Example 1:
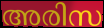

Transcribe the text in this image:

അരിസ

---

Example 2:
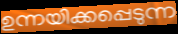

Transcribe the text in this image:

ഉന്നയിക്കപ്പെടുന്ന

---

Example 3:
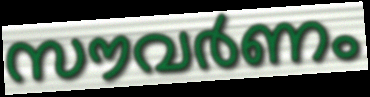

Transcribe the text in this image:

സൗവർണം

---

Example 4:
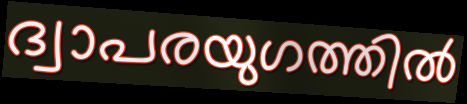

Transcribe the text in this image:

ദ്വാപരയുഗത്തിൽ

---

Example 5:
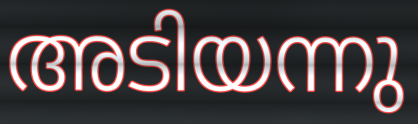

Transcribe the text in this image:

അടിയന്നു